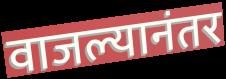
वाजल्यानंतर